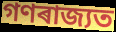
গণৰাজ্যত